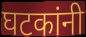
घटकांनी